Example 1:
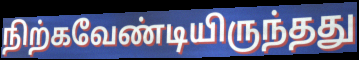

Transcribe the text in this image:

நிற்கவேண்டியிருந்தது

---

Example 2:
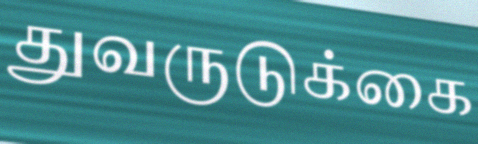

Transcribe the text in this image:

துவருடுக்கை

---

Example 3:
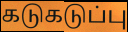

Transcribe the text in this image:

கடுகடுப்பு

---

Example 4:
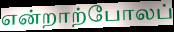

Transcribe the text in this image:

என்றாற்போலப்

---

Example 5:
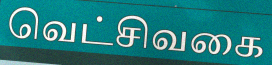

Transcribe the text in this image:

வெட்சிவகை